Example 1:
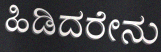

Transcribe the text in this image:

ಹಿಡಿದರೇನು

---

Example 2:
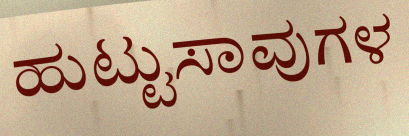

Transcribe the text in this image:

ಹುಟ್ಟುಸಾವುಗಳ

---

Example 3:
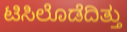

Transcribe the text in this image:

ಟಿಸಿಲೊಡೆದಿತ್ತು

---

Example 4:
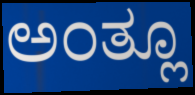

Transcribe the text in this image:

ಅಂತ್ಲೂ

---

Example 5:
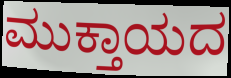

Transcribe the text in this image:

ಮುಕ್ತಾಯದ